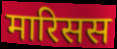
मारिसस